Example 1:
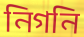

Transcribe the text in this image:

নিগনি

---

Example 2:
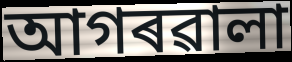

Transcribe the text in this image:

আগৰৱালা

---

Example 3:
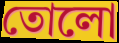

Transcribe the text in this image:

তোলো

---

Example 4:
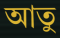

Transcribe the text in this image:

আতু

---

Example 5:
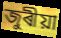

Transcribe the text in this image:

জুৰীয়া